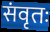
संवृतः